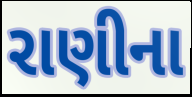
રાણીના